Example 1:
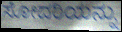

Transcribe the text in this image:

ಸೋದರಿಯನ್ನು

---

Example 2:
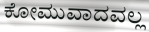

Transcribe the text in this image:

ಕೋಮುವಾದವಲ್ಲ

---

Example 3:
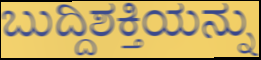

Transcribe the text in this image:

ಬುದ್ದಿಶಕ್ತಿಯನ್ನು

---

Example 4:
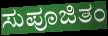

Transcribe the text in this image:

ಸುಪೂಜಿತಂ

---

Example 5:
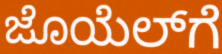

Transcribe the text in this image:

ಜೊಯೆಲ್‌ಗೆ